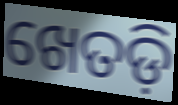
ଖେତଡ଼ି